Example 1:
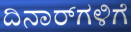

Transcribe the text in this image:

ದಿನಾರ್‌ಗಳಿಗೆ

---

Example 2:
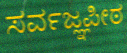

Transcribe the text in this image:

ಸರ್ವಜ್ಞಪೀಠ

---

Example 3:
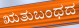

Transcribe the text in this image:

ಋತುಬಂಧದ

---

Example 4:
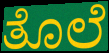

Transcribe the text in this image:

ತೊಲೆ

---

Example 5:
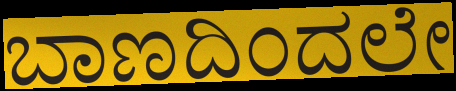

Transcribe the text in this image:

ಬಾಣದಿಂದಲೇ